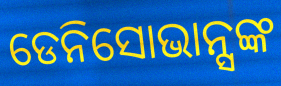
ଡେନିସୋଭାନ୍ସଙ୍କ